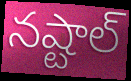
నష్టాల్